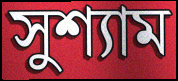
সুশ্যাম